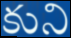
కుని